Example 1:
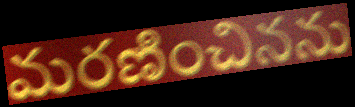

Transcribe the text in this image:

మరణించినను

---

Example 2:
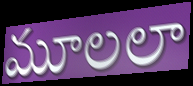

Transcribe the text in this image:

మూలలా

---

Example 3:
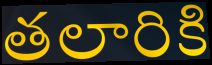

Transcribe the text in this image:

తలారికి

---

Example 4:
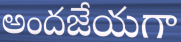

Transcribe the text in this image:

అందజేయగా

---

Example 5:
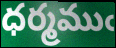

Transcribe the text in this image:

ధర్మముఁ